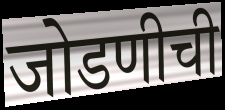
जोडणीची